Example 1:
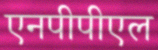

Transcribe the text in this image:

एनपीपीएल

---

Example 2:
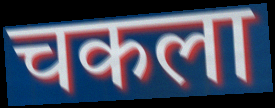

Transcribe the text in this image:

चकला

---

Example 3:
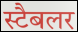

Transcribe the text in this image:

स्टैबलर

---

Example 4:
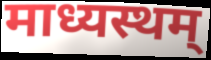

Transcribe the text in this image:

माध्यस्थम्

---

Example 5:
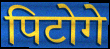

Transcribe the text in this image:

पिटोगे